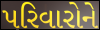
પરિવારોને